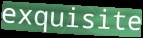
exquisite